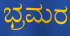
ಭ್ರಮರ